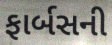
ફાર્બસની